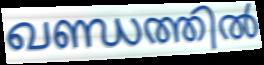
ഖണ്ഡത്തിൽ